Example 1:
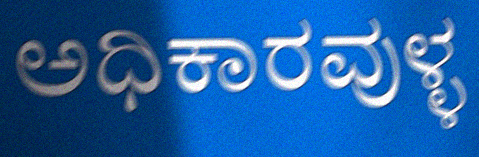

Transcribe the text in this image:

ಅಧಿಕಾರವುಳ್ಳ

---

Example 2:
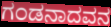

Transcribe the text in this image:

ಗಂಡನಾದವನ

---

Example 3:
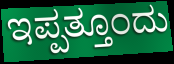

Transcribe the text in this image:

ಇಪ್ಪತ್ತೂಂದು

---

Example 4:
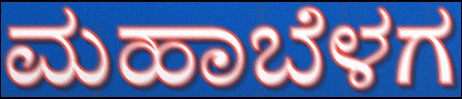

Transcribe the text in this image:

ಮಹಾಬೆಳಗ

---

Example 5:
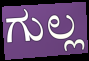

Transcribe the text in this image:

ಗುಲ್ಲ